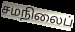
சமநிலைப்